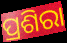
ପ୍ରଶିରା